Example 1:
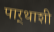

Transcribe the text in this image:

पार्थाशी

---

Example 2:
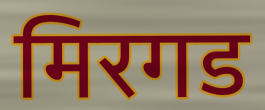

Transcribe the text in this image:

मिरगड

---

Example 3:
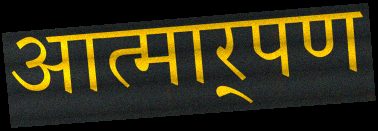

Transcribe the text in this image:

आत्मार्पण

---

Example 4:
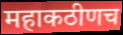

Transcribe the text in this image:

महाकठीणच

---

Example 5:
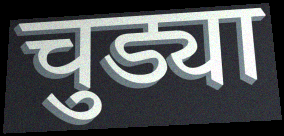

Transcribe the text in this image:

चुड्या